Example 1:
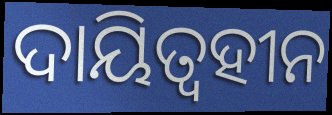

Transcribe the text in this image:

ଦାୟିତ୍ଵହୀନ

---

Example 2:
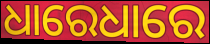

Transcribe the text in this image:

ଧାରେଧାରେ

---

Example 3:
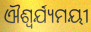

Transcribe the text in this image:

ଐଶ୍ୱର୍ଯ୍ୟମୟୀ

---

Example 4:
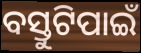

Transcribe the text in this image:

ବସ୍ତୁଟିପାଇଁ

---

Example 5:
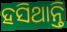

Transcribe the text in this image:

ହସିଥାନ୍ତି